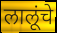
लालूंचे